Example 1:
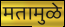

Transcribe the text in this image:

मतामुळे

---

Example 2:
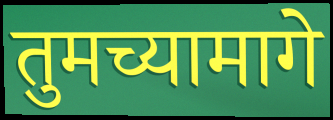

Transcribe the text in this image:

तुमच्यामागे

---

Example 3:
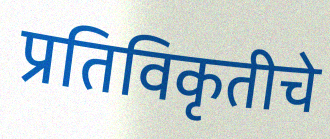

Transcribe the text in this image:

प्रतिविकृतीचे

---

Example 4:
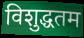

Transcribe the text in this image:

विशुद्धतम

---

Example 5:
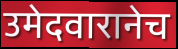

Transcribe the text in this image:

उमेदवारानेच